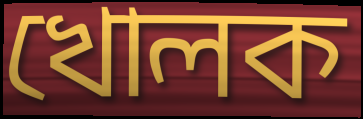
খোলক